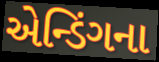
એન્ડિંગના